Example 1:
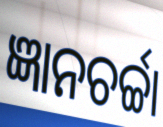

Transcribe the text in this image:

ଜ୍ଞାନଚର୍ଚ୍ଚା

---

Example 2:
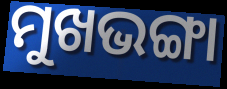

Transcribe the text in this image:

ମୁଖଭଙ୍ଗା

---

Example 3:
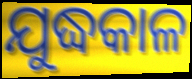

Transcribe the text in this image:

ଯୁଦ୍ଧକାଳ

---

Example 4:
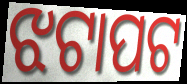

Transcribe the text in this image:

ଝଟାପଟ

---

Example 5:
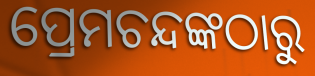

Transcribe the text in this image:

ପ୍ରେମଚନ୍ଦଙ୍କଠାରୁ